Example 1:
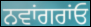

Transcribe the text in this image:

ਨਵਾਂਗਰਾਂਓ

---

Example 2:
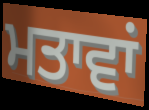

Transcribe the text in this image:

ਮਤਾਵਾਂ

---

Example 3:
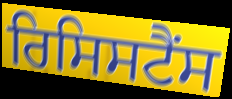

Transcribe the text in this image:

ਰਿਸਿਸਟੈਂਸ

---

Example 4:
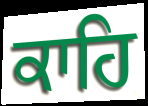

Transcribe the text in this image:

ਕਾਹਿ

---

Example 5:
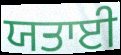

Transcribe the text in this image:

ਯਤਾਈ